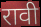
रावी